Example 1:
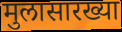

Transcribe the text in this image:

मुलासारख्या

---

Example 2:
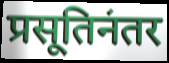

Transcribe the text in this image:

प्रसूतिनंतर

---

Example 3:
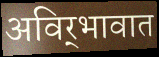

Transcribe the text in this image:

अविर्भावात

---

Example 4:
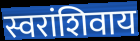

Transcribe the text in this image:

स्वरांशिवाय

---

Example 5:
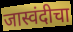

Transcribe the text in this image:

जास्वंदीचा